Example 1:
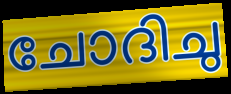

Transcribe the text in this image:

ചോദിചു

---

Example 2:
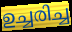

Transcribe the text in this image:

ഉച്ചരിച്ച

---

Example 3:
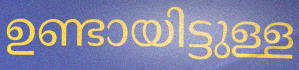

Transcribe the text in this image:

ഉണ്ടായിട്ടുള്ള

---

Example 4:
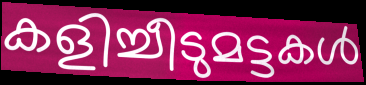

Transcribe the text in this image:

കളിച്ചീടുമട്ടകൾ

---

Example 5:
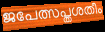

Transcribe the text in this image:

ജപേത്സപ്തശതീം